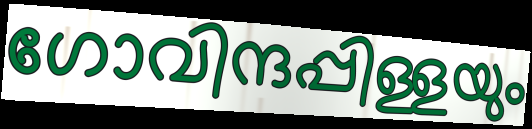
ഗോവിന്ദപ്പിള്ളയും